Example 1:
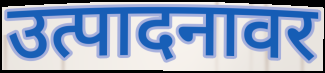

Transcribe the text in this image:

उत्पादनावर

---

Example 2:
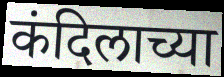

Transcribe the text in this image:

कंदिलाच्या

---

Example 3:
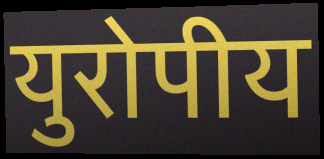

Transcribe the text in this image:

युरोपीय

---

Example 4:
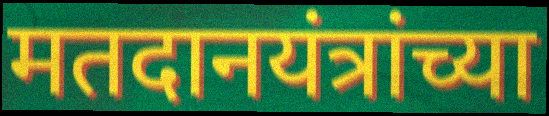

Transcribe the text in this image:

मतदानयंत्रांच्या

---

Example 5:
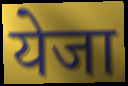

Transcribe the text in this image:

येजा